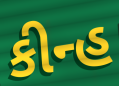
કીન્હ